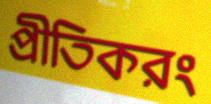
প্রীতিকরং